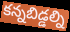
కన్నబిడ్డల్ని